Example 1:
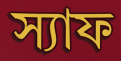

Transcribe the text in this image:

স্যাফ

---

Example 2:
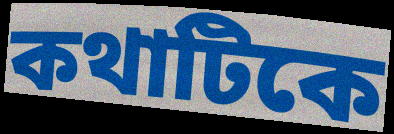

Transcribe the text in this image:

কথাটিকে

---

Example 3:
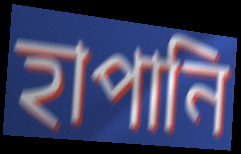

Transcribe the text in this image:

হাপানি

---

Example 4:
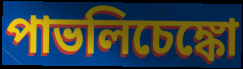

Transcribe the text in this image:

পাভলিচেঙ্কো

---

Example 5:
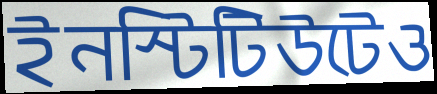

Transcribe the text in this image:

ইনস্টিটিউটেও